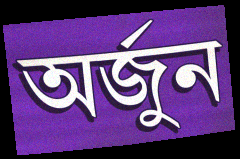
অৰ্জুন